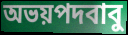
অভয়পদবাবু